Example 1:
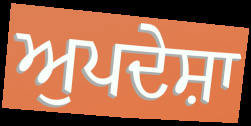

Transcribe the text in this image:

ਅੁਪਦੇਸ਼ਾ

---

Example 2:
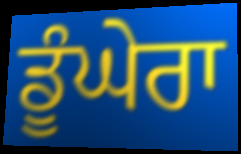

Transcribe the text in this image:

ਡੂੰਘੇਰਾ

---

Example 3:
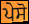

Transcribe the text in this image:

ਪੇਸੋ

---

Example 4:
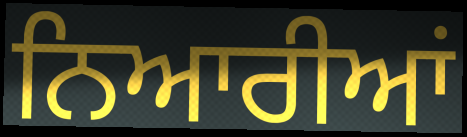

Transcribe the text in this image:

ਨਿਆਰੀਆਂ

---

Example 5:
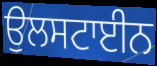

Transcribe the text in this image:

ਉਲਸਟਾਈਨ